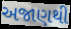
અજાણથી